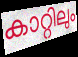
കാറ്റിലും